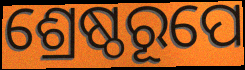
ଶ୍ରେଷ୍ଠରୂପେ